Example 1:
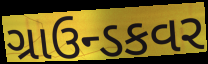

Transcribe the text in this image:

ગ્રાઉન્ડકવર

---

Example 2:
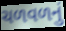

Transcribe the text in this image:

ચળવળનું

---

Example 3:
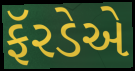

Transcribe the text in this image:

ફૅરડેએ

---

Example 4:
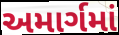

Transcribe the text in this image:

અમાર્ગમાં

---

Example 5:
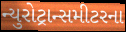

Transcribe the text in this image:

ન્યુરોટ્રાન્સમીટરના